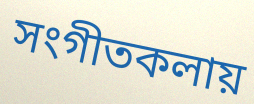
সংগীতকলায়